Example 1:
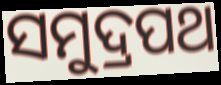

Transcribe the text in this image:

ସମୁଦ୍ରପଥ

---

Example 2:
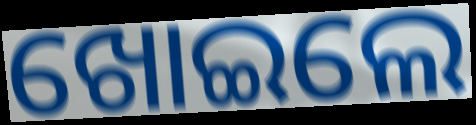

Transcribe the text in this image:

ଖୋଇଲେ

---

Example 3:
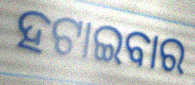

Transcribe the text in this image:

ହଟାଇବାର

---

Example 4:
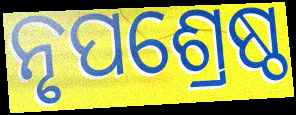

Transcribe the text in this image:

ନୃପଶ୍ରେଷ୍ଠ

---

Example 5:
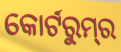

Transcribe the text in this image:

କୋର୍ଟରୁମ୍‌ର